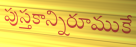
పుస్తకాన్నిరూముకే